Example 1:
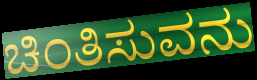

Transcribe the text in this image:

ಚಿಂತಿಸುವನು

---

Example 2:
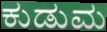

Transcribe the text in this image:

ಕುಡುಮ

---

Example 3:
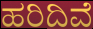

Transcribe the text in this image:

ಹರಿದಿವೆ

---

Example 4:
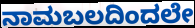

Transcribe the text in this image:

ನಾಮಬಲದಿಂದಲೇ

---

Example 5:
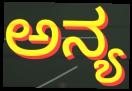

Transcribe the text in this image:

ಅನ್ಯ